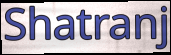
Shatranj